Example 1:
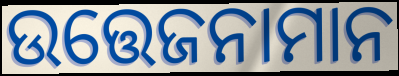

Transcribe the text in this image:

ଉତ୍ତେଜନାମାନ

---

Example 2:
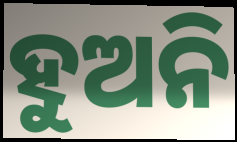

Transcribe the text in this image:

ହୁଅନି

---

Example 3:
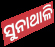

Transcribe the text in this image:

ସୁନାଥାଳି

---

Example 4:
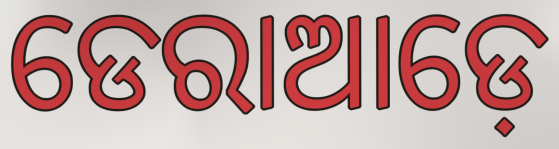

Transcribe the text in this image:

ଡେରାଆଡ଼େ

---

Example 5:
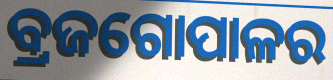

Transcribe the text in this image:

ବ୍ରଜଗୋପାଳର